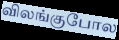
விலங்குபோல